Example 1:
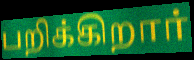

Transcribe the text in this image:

பறிக்கிறார்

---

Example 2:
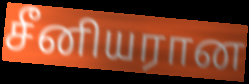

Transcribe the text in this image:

சீனியரான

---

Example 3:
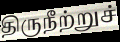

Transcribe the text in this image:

திருநீற்றுச்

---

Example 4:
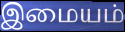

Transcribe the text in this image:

இமையம்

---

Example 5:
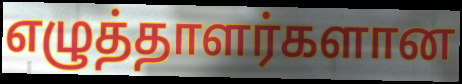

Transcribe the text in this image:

எழுத்தாளர்களான